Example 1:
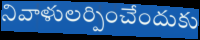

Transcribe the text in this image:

నివాళులర్పించేందుకు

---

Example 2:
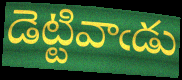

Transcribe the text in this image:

డెట్టివాఁడు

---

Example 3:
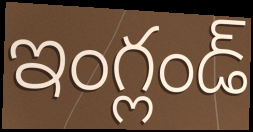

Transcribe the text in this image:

ఇంగ్లండ్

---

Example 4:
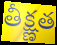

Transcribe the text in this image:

తీక్ష్ణత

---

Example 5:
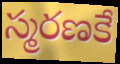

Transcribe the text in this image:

స్మరణకే